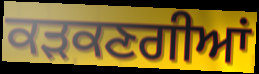
ਕੜਕਣਗੀਆਂ